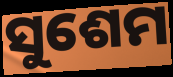
ସୁଶେମ